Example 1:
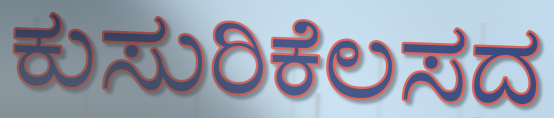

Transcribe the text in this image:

ಕುಸುರಿಕೆಲಸದ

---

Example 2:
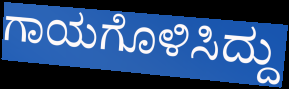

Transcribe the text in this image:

ಗಾಯಗೊಳಿಸಿದ್ದು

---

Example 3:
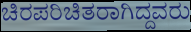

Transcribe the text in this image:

ಚಿರಪರಿಚಿತರಾಗಿದ್ದವರು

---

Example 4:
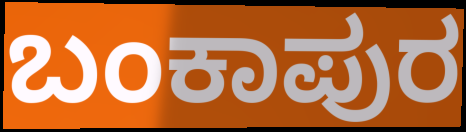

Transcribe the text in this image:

ಬಂಕಾಪುರ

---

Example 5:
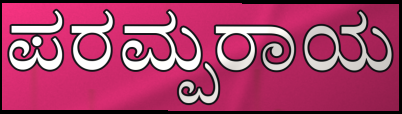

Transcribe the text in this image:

ಪರಮ್ಪರಾಯ